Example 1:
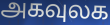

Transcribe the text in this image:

அகவுலக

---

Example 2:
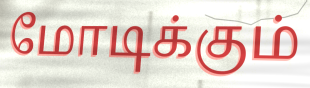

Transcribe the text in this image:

மோடிக்கும்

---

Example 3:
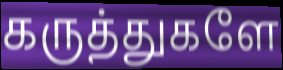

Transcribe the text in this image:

கருத்துகளே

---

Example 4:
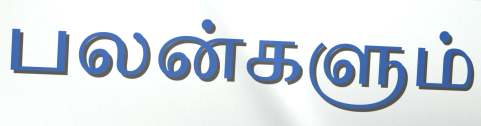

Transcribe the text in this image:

பலன்களும்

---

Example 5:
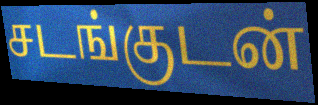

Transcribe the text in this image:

சடங்குடன்